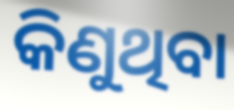
କିଣୁଥିବା